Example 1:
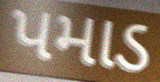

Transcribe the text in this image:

પમાડ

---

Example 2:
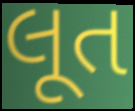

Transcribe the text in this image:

લૂત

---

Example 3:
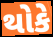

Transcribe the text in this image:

થોકે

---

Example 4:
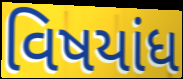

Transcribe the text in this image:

વિષયાંધ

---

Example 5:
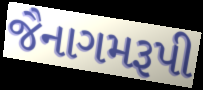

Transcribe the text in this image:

જૈનાગમરૂપી